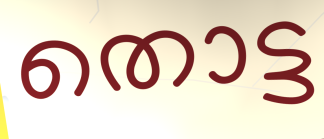
തൊട്ട